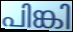
പിങ്കി